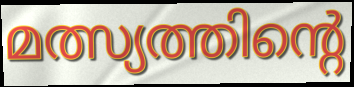
മത്സ്യത്തിന്റെ